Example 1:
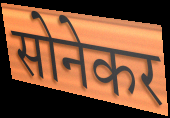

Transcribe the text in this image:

सोनेकर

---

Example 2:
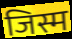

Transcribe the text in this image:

जिस्म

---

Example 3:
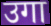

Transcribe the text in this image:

उगा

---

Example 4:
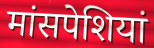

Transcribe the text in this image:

मांसपेशियां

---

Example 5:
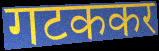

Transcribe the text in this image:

गटककर